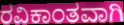
ರವಿಕಾಂತವಾಗಿ